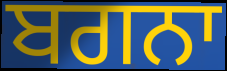
ਬਗਨਾ